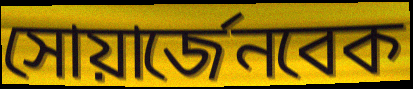
সোয়ার্জেনবেক